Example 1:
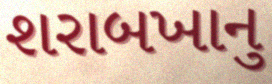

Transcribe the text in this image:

શરાબખાનુ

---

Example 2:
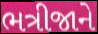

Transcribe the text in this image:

ભત્રીજાને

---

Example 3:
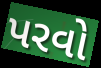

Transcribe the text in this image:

પરવો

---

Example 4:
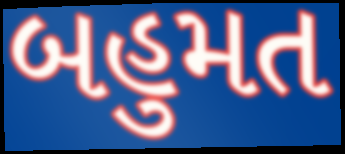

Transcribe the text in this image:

બહુમત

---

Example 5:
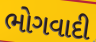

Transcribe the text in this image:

ભોગવાદી